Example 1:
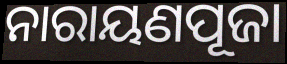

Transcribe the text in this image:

ନାରାୟଣପୂଜା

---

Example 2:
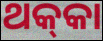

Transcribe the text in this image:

ଥକ୍‌କା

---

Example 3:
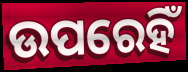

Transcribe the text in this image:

ଉପରେହିଁ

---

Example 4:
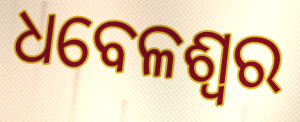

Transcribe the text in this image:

ଧବେଳଶ୍ୱର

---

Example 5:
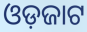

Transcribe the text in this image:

ଓଡ଼ଜାଟ